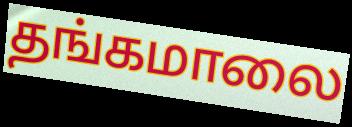
தங்கமாலை